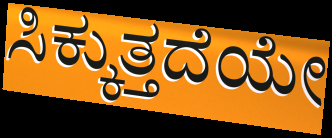
ಸಿಕ್ಕುತ್ತದೆಯೇ